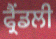
ਫ੍ਰੈਂਡਲੀ